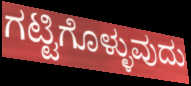
ಗಟ್ಟಿಗೊಳ್ಳುವುದು